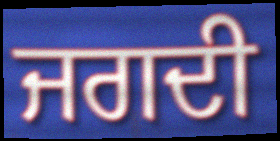
ਜਗਦੀ